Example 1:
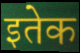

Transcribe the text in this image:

इतेक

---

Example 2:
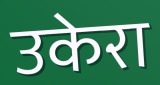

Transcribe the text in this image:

उकेरा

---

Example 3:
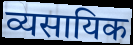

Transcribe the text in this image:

व्यसायिक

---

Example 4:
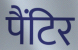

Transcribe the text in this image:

पैंटिर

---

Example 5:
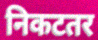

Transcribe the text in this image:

निकटतर